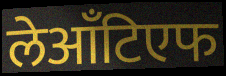
लेआँटिएफ